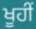
ਖੂਹੀਂ